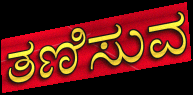
ತಣಿಸುವ